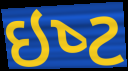
ઇષ્‍ટ